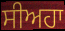
ਸੀਅਹਾ